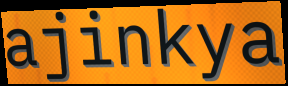
ajinkya